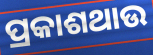
ପ୍ରକାଶଥାଉ